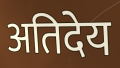
अतिदेय